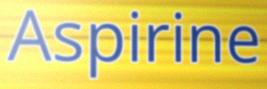
Aspirine